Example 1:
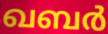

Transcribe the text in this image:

ഖബർ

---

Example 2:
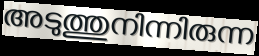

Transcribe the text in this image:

അടുത്തുനിന്നിരുന്ന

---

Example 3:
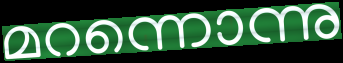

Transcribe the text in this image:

മറന്നൊന്നു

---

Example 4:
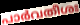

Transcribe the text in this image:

പാർവതീശഃ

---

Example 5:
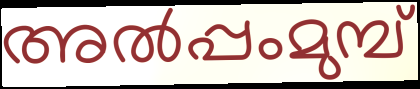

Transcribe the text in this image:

അൽപ്പംമുമ്പ്